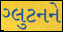
ગ્લુટનને